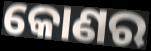
କୋଣର